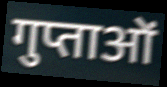
गुप्ताओं